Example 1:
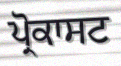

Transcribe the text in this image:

ਪ੍ਰੋਕਾਸਟ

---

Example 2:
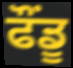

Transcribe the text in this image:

ਫੌਂਡੂ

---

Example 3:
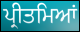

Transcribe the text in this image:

ਪ੍ਰੀਤਮਿਆਂ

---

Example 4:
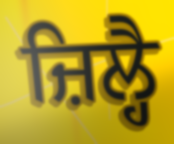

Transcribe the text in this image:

ਜ਼ਿਲ੍ਹੈ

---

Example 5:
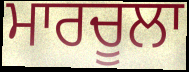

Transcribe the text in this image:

ਮਾਰਚੂਲਾ